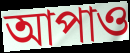
আপাও